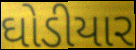
ઘોડીયાર